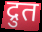
द्रुत